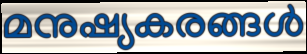
മനുഷ്യകരങ്ങൾ